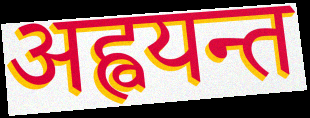
अह्वयन्त